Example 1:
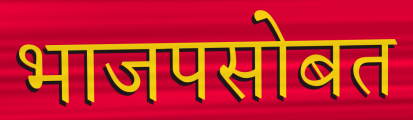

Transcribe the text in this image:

भाजपसोबत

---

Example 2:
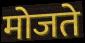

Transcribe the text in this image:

मोजते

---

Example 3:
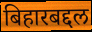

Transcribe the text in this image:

बिहारबद्दल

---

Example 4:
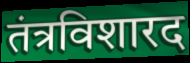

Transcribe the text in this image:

तंत्रविशारद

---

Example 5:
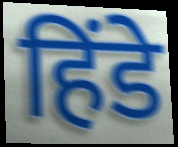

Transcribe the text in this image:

हिंडे